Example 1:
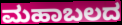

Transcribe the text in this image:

ಮಹಾಬಲದ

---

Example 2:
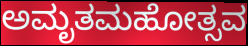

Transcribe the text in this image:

ಅಮೃತಮಹೋತ್ಸವ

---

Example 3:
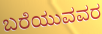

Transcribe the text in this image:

ಬರೆಯುವವರ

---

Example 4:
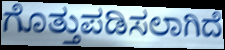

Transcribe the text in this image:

ಗೊತ್ತುಪಡಿಸಲಾಗಿದೆ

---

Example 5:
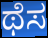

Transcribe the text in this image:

ಥೆಸ